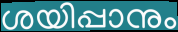
ശയിപ്പാനും